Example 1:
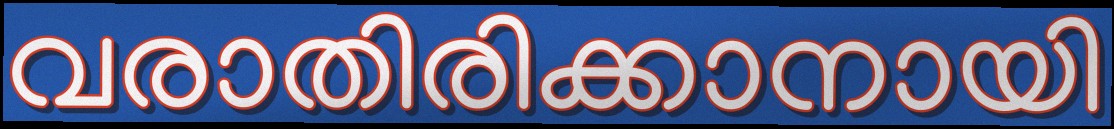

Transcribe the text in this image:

വരാതിരിക്കാനായി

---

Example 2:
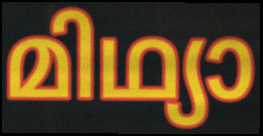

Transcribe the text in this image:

മിഥ്യാ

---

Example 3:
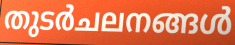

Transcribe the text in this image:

തുടർചലനങ്ങൾ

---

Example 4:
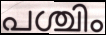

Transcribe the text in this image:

പശ്ചിം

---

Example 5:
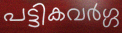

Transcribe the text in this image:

പട്ടികവർഗ്ഗ